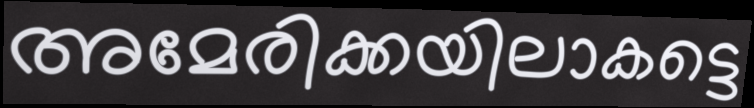
അമേരിക്കയിലാകട്ടെ